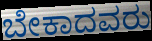
ಬೇಕಾದವರು